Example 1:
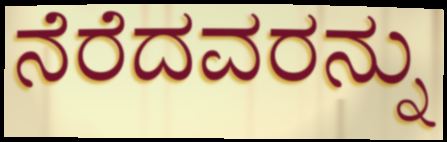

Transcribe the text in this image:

ನೆರೆದವರನ್ನು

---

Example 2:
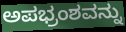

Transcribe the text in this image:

ಅಪಭ್ರಂಶವನ್ನು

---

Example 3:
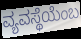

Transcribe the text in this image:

ವ್ಯವಸ್ಥೆಯೆಂಬ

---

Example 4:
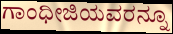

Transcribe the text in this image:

ಗಾಂಧೀಜಿಯವರನ್ನೂ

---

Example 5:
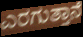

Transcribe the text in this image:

ಎರಗುತ್ತಾನೆ